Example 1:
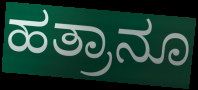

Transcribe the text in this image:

ಹತ್ರಾನೂ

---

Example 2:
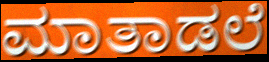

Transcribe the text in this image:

ಮಾತಾಡಲೆ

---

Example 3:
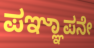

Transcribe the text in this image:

ಪಞ್ಞಾಪನೇ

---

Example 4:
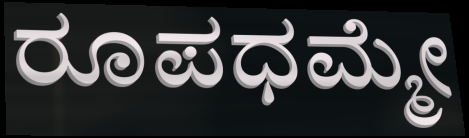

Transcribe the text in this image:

ರೂಪಧಮ್ಮೇ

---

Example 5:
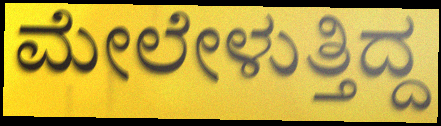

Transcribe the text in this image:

ಮೇಲೇಳುತ್ತಿದ್ದ